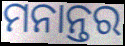
ମନାନ୍ତର